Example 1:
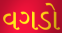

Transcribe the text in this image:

વગડો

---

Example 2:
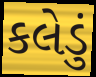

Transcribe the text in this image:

કલેડું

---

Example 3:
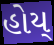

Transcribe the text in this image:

હોય્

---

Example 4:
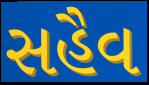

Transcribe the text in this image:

સહૈવ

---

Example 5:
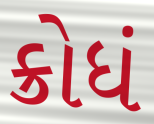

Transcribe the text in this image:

ક્રોધં